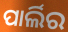
ପାର୍ଲିର